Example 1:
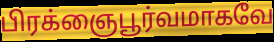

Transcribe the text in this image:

பிரக்ஞைபூர்வமாகவே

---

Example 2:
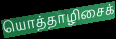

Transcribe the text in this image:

யொத்தாழிசைக்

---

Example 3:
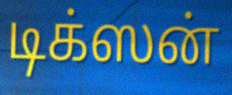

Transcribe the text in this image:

டிக்ஸன்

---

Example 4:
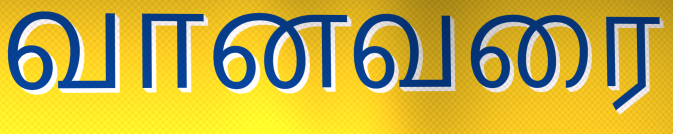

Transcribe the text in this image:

வானவரை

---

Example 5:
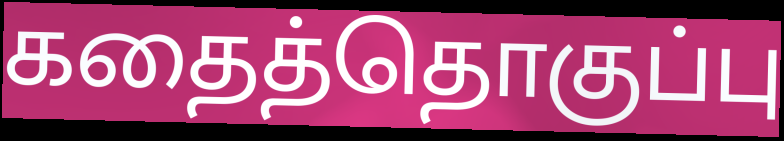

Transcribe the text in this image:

கதைத்தொகுப்பு